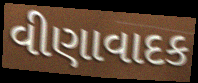
વીણાવાદક